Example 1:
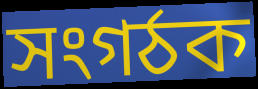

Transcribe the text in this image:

সংগঠক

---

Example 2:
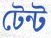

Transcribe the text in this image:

টেন্ট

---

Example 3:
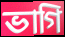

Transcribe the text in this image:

ভাগি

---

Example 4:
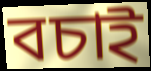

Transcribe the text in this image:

বচাই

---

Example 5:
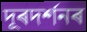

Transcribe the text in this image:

দূৰদৰ্শনৰ